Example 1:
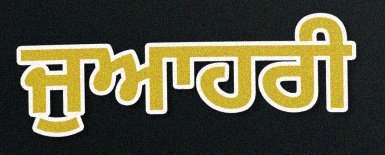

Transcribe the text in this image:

ਜੁਆਹਰੀ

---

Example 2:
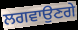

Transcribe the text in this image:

ਲਗਵਾਉਣਗੇ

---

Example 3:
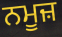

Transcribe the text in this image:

ਨਮੂਜ਼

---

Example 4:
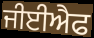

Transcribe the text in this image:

ਜੀਈਐਫ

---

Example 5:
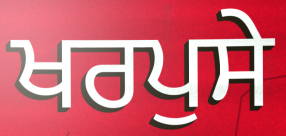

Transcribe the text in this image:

ਖਰਪੁਸੇ